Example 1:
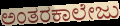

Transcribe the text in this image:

ಅಂತರಕಾಲೇಜು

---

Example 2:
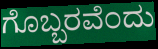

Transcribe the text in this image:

ಗೊಬ್ಬರವೆಂದು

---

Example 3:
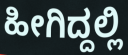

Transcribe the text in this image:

ಹೀಗಿದ್ದಲ್ಲಿ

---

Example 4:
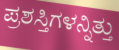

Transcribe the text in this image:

ಪ್ರಶಸ್ತಿಗಳನ್ನಿತ್ತು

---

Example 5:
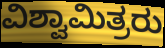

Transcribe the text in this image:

ವಿಶ್ವಾಮಿತ್ರರು